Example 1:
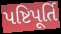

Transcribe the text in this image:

પષ્ટિપૂર્તિ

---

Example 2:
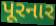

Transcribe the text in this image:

પૂરનાર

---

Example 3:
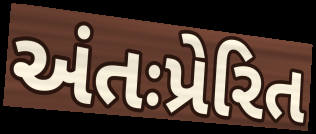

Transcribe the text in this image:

અંતઃપ્રેરિત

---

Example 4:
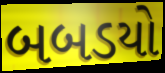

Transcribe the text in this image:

બબડયો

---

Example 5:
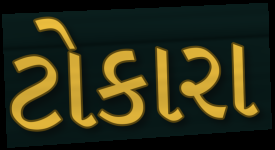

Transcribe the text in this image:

ટોકારા